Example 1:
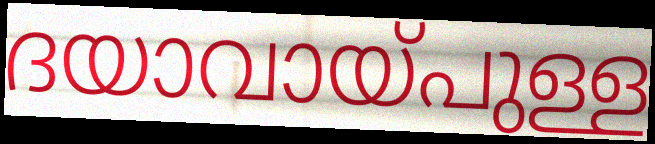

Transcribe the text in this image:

ദയാവായ്പുള്ള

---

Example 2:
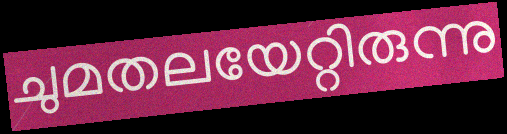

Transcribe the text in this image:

ചുമതലയേറ്റിരുന്നു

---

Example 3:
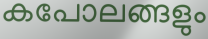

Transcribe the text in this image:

കപോലങ്ങളും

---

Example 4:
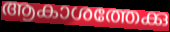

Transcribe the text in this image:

ആകാശത്തേക്കു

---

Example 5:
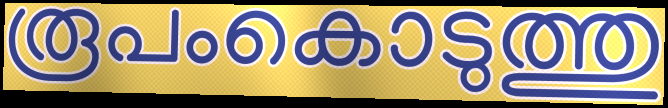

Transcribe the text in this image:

രൂപംകൊടുത്തു